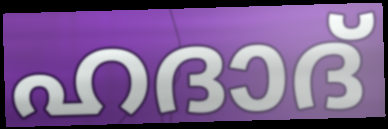
ഹദാദ്